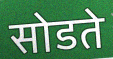
सोडते